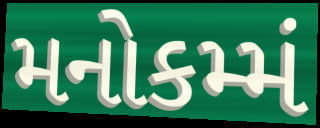
મનોકમ્મં